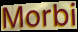
Morbi